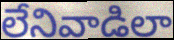
లేనివాడిలా